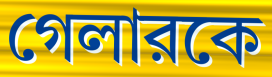
গেলারকে